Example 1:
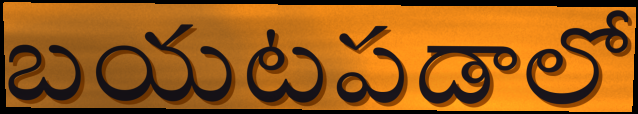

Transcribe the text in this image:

బయటపడాలో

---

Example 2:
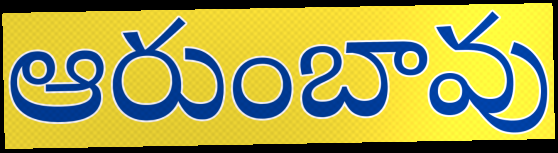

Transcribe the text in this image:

ఆరుంబావు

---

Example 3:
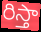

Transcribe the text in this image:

రిస్తా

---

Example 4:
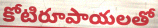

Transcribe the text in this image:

కోటిరూపాయలతో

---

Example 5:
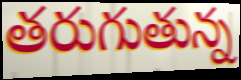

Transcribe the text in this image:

తరుగుతున్న